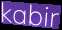
kabir